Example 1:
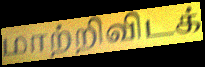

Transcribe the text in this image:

மாற்றிவிடக்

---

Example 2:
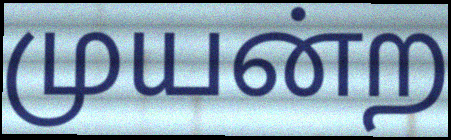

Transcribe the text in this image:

முயன்ற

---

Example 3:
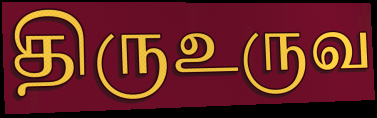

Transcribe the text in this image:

திருஉருவ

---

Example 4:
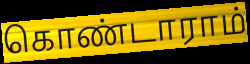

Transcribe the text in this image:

கொண்டாராம்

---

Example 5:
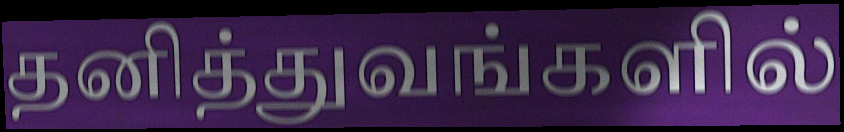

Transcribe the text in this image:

தனித்துவங்களில்